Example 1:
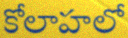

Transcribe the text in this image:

కోలాహలో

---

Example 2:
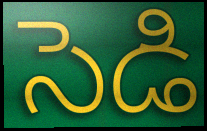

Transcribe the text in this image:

సెడి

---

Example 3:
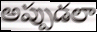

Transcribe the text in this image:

అప్పుడలా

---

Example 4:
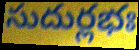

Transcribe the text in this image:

సుదుర్లభః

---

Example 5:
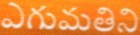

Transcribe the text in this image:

ఎగుమతిని